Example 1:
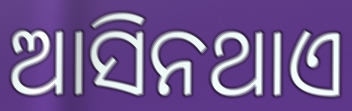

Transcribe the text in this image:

ଆସିନଥାଏ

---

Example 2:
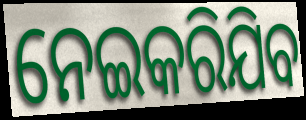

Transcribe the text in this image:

ନେଇକରିଯିବ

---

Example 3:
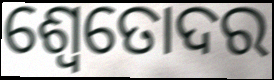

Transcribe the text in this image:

ଶ୍ୱେତୋଦର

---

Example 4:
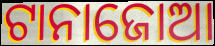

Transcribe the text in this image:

ଟାନାଜୋଆ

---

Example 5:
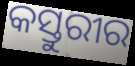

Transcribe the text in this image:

କସ୍ତୁରୀର